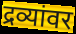
द्रव्यांवर